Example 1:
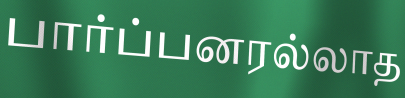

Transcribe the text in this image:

பார்ப்பனரல்லாத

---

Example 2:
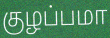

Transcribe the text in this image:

குழப்பமா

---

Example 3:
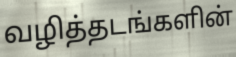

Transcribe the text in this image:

வழித்தடங்களின்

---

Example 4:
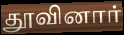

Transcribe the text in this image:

தூவினார்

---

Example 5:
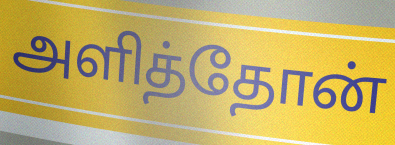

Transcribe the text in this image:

அளித்தோன்